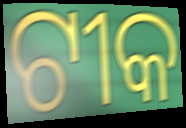
ଟୀକ